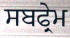
ਸਬਫ੍ਰੇਮ